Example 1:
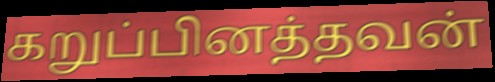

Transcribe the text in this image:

கறுப்பினத்தவன்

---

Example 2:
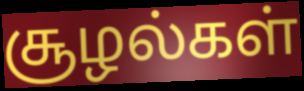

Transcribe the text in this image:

சூழல்கள்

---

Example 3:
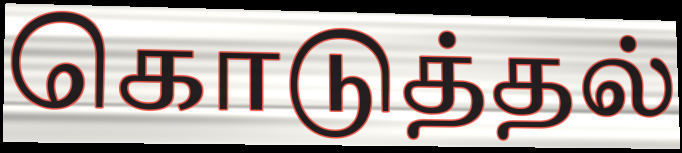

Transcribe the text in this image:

கொடுத்தல்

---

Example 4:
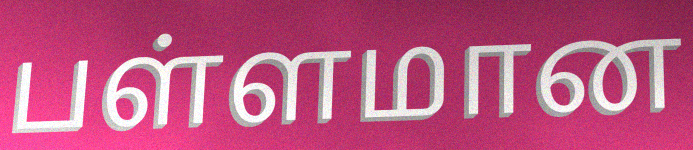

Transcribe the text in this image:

பள்ளமான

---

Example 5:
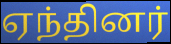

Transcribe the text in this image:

ஏந்தினர்